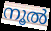
നൂൽ